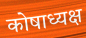
कोषाध्यक्ष